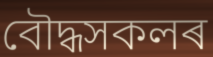
বৌদ্ধসকলৰ